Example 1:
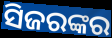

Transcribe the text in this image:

ସିଜରଙ୍କର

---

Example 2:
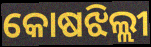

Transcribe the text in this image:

କୋଷଝିଲ୍ଲୀ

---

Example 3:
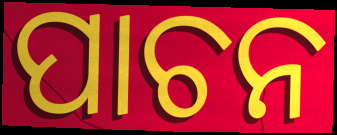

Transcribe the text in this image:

ପାଚନ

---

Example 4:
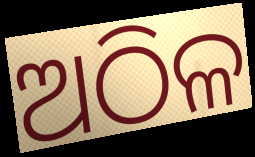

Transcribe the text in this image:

ଅଠିଳ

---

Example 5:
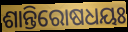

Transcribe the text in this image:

ଶାନ୍ତିରୋଷଧୟଃ